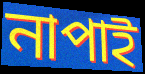
নাপাই